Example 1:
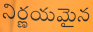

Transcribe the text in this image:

నిర్ణయమైన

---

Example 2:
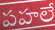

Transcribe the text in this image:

పహలే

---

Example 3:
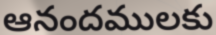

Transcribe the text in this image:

ఆనందములకు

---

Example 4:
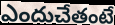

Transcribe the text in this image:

ఎందుచేతంటే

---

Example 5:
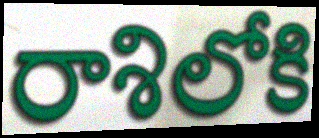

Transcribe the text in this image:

రాశిలోకి